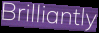
Brilliantly